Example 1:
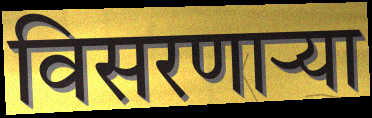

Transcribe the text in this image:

विसरणाऱ्या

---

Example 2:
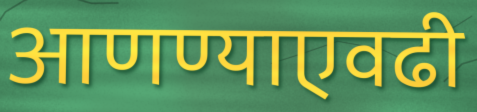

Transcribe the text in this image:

आणण्याएवढी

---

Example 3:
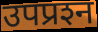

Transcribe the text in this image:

उपप्रश्‍न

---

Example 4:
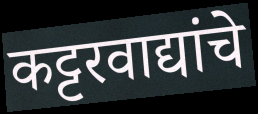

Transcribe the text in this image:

कट्टरवाद्यांचे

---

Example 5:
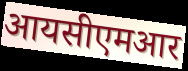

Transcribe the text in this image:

आयसीएमआर